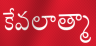
కేవలాత్మా